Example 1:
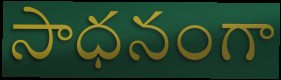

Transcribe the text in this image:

సాధనంగా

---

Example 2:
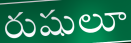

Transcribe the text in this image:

రుషులూ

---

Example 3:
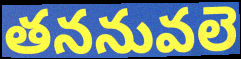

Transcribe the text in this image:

తననువలె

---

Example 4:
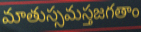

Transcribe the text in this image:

మాతుస్సమస్తజగతాం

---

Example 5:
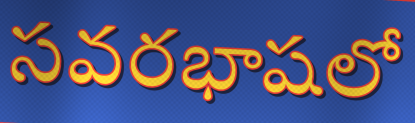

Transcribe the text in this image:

సవరభాషలో